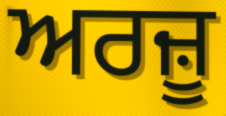
ਅਰਜ਼ੂ